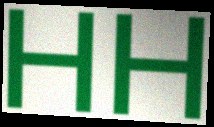
HH